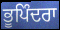
ਭੂਪਿੰਦਰਾ